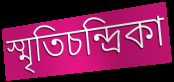
স্মৃতিচন্দ্রিকা